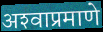
अश्वाप्रमाणे